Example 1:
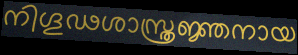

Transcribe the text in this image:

നിഗൂഢശാസ്ത്രജ്ഞനായ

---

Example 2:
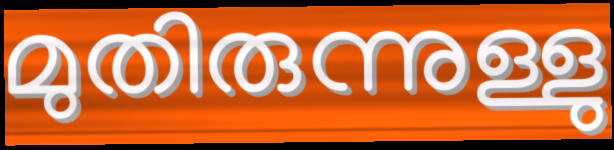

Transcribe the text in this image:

മുതിരുന്നുള്ളു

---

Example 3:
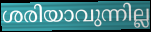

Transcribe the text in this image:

ശരിയാവുന്നില്ല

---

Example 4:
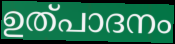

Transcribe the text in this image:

ഉത്പാദനം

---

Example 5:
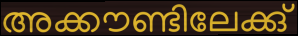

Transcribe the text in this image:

അക്കൗണ്ടിലേക്കു്